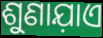
ଶୁଣାଯ଼ାଏ